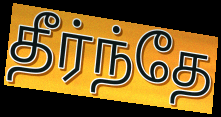
தீர்ந்தே